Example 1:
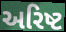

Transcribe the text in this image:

અરિષ્ટ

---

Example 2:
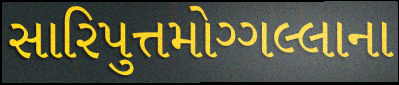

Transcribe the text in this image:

સારિપુત્તમોગ્ગલ્લાના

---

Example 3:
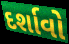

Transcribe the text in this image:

દર્શાવો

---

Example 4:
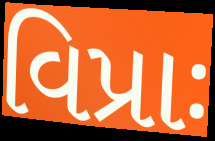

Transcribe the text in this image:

વિપ્રાઃ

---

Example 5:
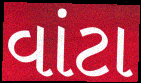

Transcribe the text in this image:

વાંટા